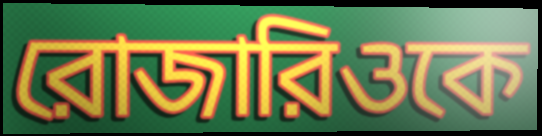
রোজারিওকে